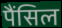
पैंसिल